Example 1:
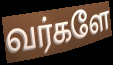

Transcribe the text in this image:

வர்களே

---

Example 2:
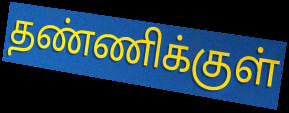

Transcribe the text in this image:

தண்ணிக்குள்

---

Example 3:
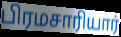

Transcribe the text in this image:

பிரமசாரியார்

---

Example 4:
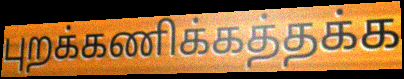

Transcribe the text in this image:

புறக்கணிக்கத்தக்க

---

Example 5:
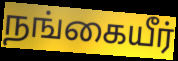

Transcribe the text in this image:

நங்கையீர்